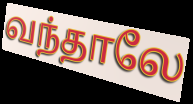
வந்தாலே